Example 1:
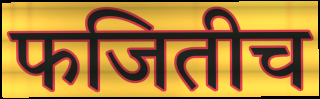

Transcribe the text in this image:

फजितीच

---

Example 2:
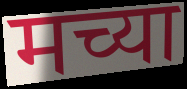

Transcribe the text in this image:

मच्या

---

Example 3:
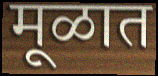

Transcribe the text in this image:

मूळात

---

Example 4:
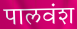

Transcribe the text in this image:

पालवंश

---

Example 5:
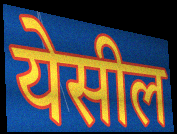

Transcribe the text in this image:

येसील